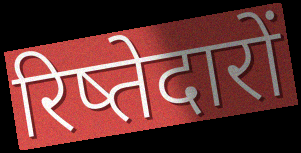
रिष्तेदारों